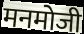
मनमोजी